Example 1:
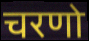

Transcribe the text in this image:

चरणो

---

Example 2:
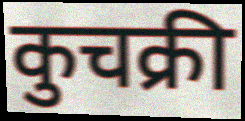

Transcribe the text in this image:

कुचक्री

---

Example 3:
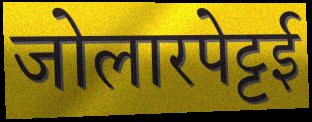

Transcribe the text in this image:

जोलारपेट्टई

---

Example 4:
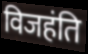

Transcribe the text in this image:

विजहंति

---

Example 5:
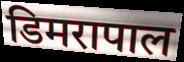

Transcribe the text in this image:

डिमरापाल